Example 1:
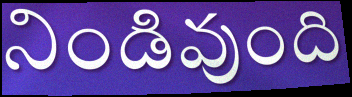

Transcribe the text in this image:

నిండివుంది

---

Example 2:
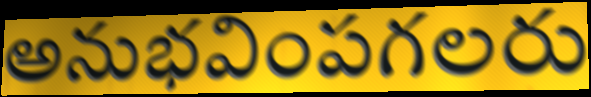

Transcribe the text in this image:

అనుభవింపగలరు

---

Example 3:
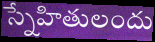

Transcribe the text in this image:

స్నేహితులందు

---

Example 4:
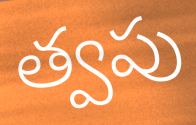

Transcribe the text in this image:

త్వపు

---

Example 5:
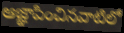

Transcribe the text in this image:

ఆజ్ఞాపించినవాటిలో